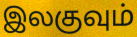
இலகுவும்